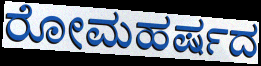
ರೋಮಹರ್ಷದ